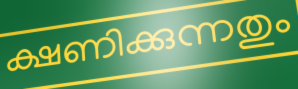
ക്ഷണിക്കുന്നതും